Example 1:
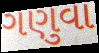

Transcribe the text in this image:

ગણુવા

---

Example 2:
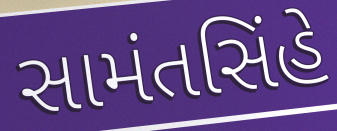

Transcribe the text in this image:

સામંતસિંહે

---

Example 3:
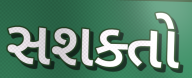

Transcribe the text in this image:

સશક્તો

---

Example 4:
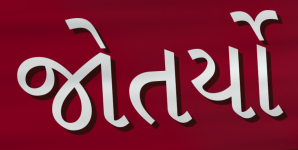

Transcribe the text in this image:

જોતર્યો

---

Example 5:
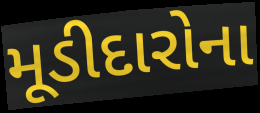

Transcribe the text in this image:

મૂડીદારોના